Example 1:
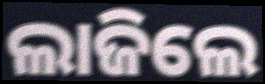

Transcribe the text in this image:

ଲାଜିଲେ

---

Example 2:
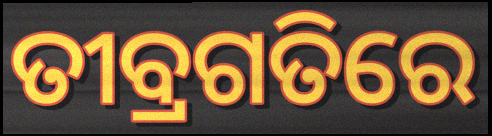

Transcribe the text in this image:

ତୀବ୍ରଗତିରେ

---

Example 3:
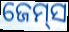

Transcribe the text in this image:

ଜେମ୍‌ସ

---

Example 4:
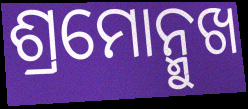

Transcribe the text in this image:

ଶ୍ରମୋନ୍ମୁଖ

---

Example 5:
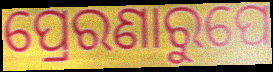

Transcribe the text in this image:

ପ୍ରେରଣାରୁପେ